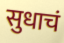
सुधाचं